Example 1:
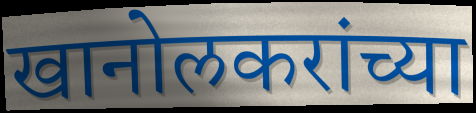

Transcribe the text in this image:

खानोलकरांच्या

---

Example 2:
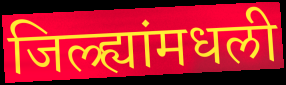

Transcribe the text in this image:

जिल्ह्यांमधली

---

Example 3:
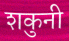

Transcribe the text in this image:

शकुनी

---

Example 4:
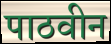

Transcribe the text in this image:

पाठवीन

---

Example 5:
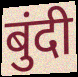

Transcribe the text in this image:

बुंदी